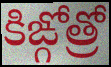
కిఙ్గోత్రో